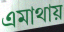
এমাথায়